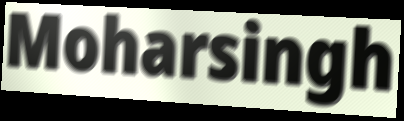
Moharsingh